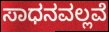
ಸಾಧನವಲ್ಲವೆ